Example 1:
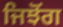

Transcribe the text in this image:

ਜਿਝੋਂਗ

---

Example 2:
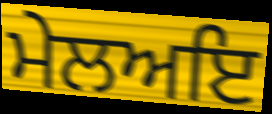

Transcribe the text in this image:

ਮੇਲਅਇ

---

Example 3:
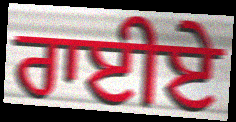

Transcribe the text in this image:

ਰਾਈਏ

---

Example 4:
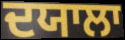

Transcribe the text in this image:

ਦਯਾਲਾ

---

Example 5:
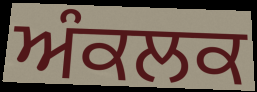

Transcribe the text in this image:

ਅੰਕਲਕ